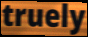
truely